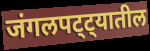
जंगलपट्ट्यातील